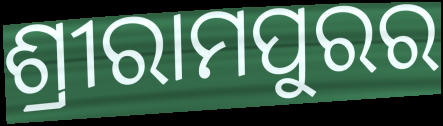
ଶ୍ରୀରାମପୁରର